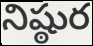
నిష్ఠుర